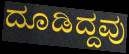
ದೂಡಿದ್ದವು